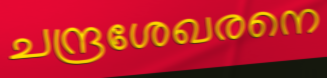
ചന്ദ്രശേഖരനെ